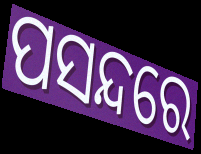
ପସନ୍ଦରେ